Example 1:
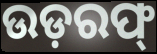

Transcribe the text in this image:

ଉଡ଼ରଫ୍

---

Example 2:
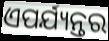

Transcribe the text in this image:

ଏପର୍ଯ୍ୟନ୍ତର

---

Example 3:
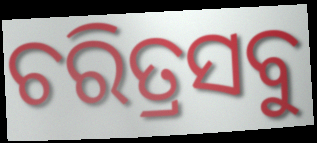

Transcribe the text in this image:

ଚରିତ୍ରସବୁ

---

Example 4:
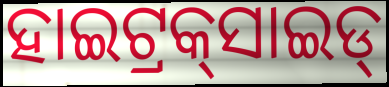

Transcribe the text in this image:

ହାଇଟ୍ରକ୍‌ସାଇଡ୍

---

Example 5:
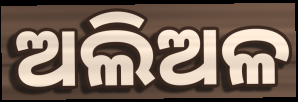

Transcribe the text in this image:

ଅଲିଅଳ